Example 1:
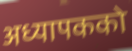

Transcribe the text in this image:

अध्यापकको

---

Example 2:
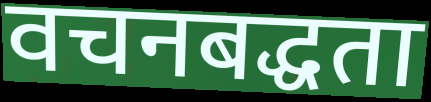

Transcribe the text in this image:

वचनबद्धता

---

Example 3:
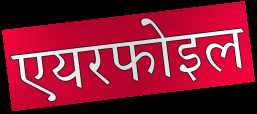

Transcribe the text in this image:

एयरफोइल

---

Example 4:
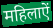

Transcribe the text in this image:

महिलाऐं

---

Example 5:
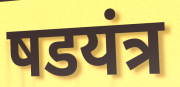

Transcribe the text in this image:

षडयंत्र